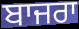
ਬਾਜਰਾ